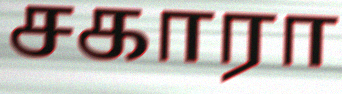
சகாரா